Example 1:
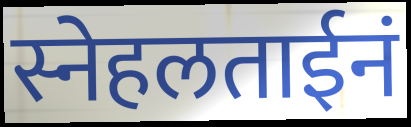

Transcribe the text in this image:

स्नेहलताईनं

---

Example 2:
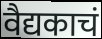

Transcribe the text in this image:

वैद्यकाचं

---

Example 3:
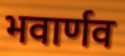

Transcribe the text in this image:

भवार्णव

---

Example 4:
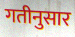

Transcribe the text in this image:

गतीनुसार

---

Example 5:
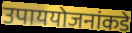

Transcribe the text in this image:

उपाययोजनांकडे